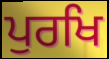
ਪੁਰਖਿ